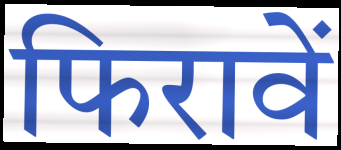
फिरावें